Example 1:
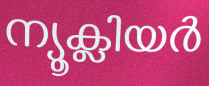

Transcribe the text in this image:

ന്യൂക്ലിയർ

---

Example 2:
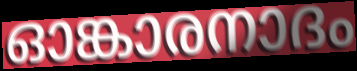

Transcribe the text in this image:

ഓങ്കാരനാദം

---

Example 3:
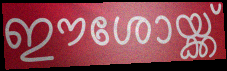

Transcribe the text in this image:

ഈശോയ്ക്ക്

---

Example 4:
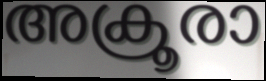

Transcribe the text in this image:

അക്രൂരാ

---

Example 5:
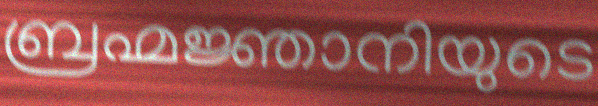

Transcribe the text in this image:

ബ്രഹ്മജ്ഞാനിയുടെ